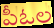
పీఓల